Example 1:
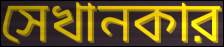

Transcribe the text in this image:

সেখানকার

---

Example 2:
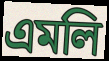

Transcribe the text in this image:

এমলি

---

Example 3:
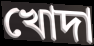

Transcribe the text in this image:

খোদা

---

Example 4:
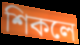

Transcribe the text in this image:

শিকলে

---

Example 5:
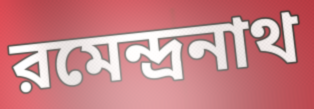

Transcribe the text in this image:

রমেন্দ্রনাথ